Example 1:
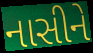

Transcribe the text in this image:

નાસીને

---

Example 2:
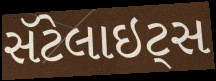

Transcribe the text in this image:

સૅટેલાઇટ્સ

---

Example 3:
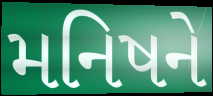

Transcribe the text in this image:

મનિષને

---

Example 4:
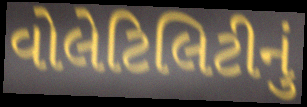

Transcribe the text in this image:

વોલેટિલિટીનું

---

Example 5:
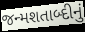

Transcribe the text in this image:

જન્મશતાબ્દીનું